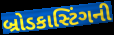
બ્રોડકાસ્ટિંગની